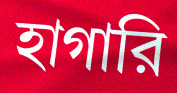
হাগারি